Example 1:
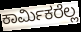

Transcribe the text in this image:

ಕಾರ್ಮಿಕರೆಲ್ಲ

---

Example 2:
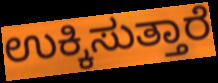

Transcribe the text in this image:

ಉಕ್ಕಿಸುತ್ತಾರೆ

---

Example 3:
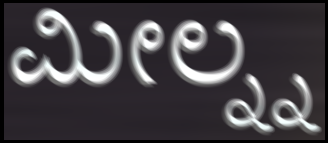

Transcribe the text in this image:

ಮೀಲ್ನ್ನ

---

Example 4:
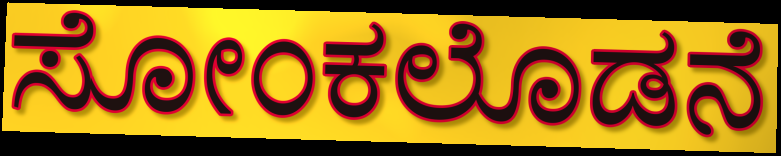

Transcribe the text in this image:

ಸೋಂಕಲೊಡನೆ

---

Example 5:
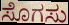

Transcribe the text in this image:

ಸೊಗಸು